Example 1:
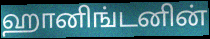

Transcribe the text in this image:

ஹானிங்டனின்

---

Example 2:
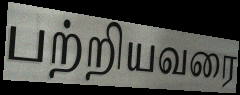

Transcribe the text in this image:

பற்றியவரை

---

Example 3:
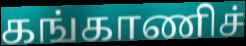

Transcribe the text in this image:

கங்காணிச்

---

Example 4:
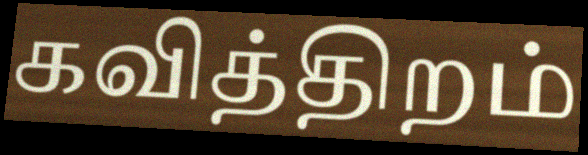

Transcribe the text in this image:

கவித்திறம்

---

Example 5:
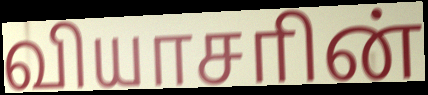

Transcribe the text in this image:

வியாசரின்